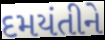
દમયંતીને